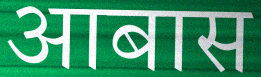
आबास